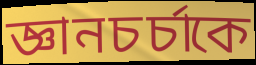
জ্ঞানচর্চাকে